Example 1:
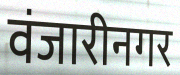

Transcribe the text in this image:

वंजारीनगर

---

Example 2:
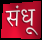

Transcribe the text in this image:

संधू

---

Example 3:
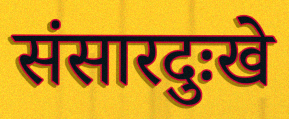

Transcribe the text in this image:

संसारदुःखे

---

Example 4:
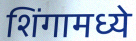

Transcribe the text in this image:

शिंगामध्ये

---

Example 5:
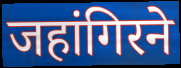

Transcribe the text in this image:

जहांगिरने